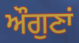
ਔਗੁਣਾਂ